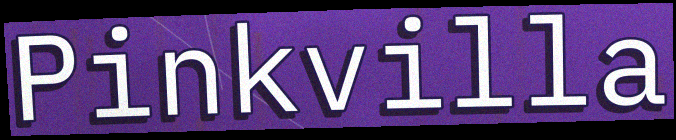
Pinkvilla